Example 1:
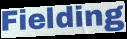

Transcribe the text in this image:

Fielding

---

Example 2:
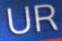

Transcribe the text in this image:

UR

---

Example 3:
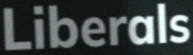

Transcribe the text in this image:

Liberals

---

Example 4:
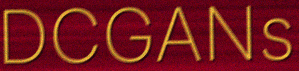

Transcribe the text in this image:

DCGANs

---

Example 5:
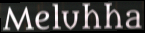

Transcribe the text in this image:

Meluhha